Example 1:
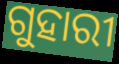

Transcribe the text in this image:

ଗୁହାରୀ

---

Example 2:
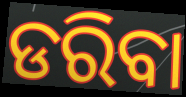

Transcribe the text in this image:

ଡରିବା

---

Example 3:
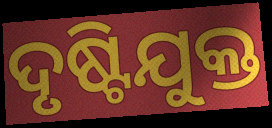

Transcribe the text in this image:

ଦୃଷ୍ଟିଯୁକ୍ତ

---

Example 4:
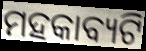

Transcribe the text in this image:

ମହକାବ୍ୟଟି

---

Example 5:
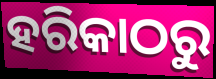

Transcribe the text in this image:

ହରିକାଠରୁ